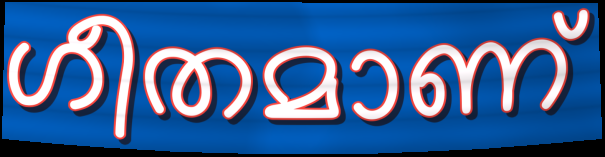
ഗീതമാണ്